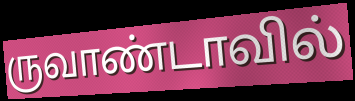
ருவாண்டாவில்